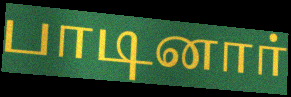
பாடினார்